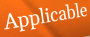
Applicable